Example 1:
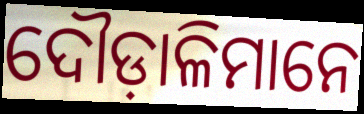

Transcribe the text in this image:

ଦୌଡ଼ାଳିମାନେ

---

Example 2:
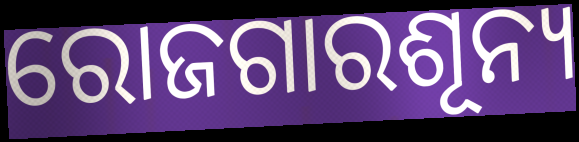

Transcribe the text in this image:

ରୋଜଗାରଶୂନ୍ୟ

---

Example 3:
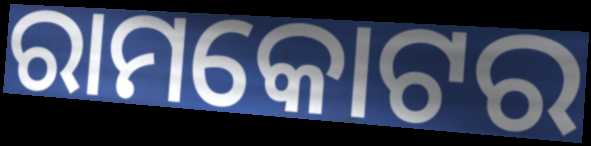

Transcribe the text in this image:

ରାମକୋଟର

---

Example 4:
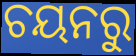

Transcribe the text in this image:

ଚୟନରୁ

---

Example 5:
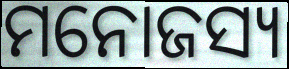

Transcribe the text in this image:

ମନୋଜସ୍ୟ